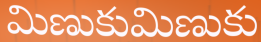
మిణుకుమిణుకు